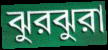
ঝুরঝুরা